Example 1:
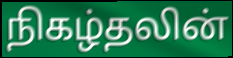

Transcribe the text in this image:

நிகழ்தலின்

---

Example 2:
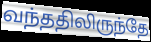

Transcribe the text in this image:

வந்ததிலிருந்தே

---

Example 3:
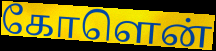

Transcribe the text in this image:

கோளென்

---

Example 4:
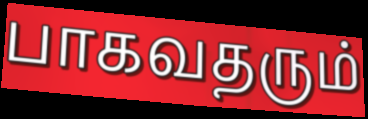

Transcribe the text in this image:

பாகவதரும்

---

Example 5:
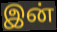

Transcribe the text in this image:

இன்